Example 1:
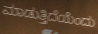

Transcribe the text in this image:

ಮಾಡುತ್ತಿದೆಯೆಂದು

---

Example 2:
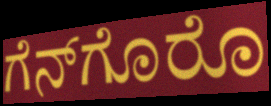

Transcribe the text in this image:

ಗೆನ್‌ಗೊರೊ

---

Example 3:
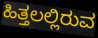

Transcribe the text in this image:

ಹಿತ್ತಲಲ್ಲಿರುವ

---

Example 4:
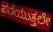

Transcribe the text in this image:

ಪಡೆಯುತ್ತಲೇ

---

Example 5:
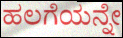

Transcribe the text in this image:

ಹಲಗೆಯನ್ನೇ